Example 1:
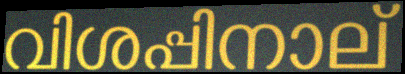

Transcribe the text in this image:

വിശപ്പിനാല്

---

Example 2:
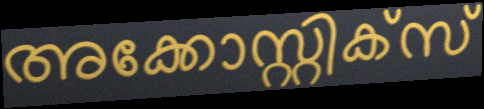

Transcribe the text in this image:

അക്കോസ്റ്റിക്സ്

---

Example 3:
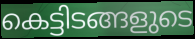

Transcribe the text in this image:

കെട്ടിടങ്ങളുടെ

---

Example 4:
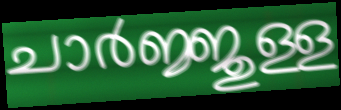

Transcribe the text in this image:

ചാർജ്ജുള്ള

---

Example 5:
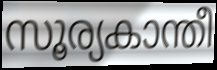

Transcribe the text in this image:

സൂര്യകാന്തീ